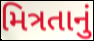
મિત્રતાનું